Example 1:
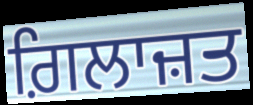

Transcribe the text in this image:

ਗ਼ਿਲਾਜ਼ਤ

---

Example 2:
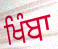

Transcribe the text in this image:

ਖਿੰਬਾ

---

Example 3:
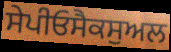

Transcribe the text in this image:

ਸੇਪੀਓਸੈਕਸੁਅਲ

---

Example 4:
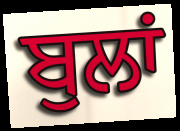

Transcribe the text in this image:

ਬੁਲਾਂ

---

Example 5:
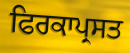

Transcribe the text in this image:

ਫਿਰਕਾਪ੍ਰਸਤ